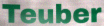
Teuber